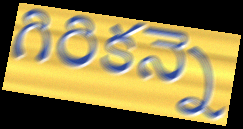
గిరికన్నె